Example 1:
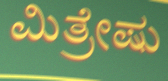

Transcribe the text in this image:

ಮಿತ್ರೇಷು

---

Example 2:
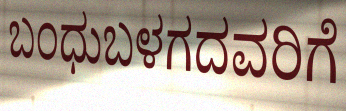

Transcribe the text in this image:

ಬಂಧುಬಳಗದವರಿಗೆ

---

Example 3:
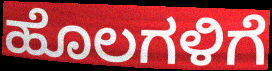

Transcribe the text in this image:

ಹೊಲಗಳಿಗೆ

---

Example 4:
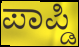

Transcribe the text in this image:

ಪಾಪ್ಡಿ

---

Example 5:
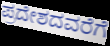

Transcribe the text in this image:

ಪ್ರದೇಶದವರೆಗೆ